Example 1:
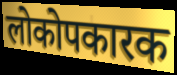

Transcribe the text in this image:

लोकोपकारक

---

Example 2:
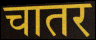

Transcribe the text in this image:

चातर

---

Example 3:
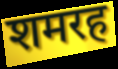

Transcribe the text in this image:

शमरह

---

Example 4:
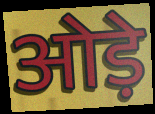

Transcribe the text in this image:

ओड़े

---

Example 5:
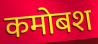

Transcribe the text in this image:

कमोबश